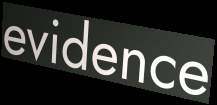
evidence